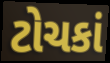
ટોચકાં